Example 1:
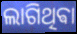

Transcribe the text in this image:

ଲାଗିଥିଵା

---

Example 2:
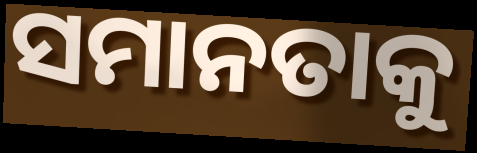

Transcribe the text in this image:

ସମାନତାକୁ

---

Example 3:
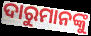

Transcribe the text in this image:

ଦାରୁମାନଙ୍କୁ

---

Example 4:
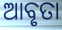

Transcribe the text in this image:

ଆବୃତା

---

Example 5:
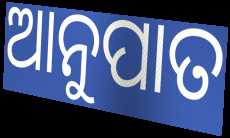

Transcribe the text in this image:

ଆନୁପାତ